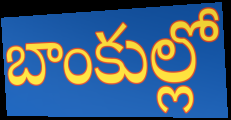
బాంకుల్లో